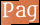
Pag